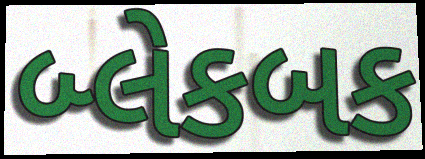
બ્લેકબક